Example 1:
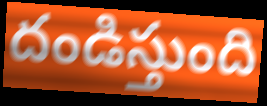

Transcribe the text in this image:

దండిస్తుంది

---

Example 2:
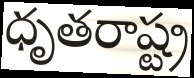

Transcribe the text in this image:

ధృతరాష్ట్ర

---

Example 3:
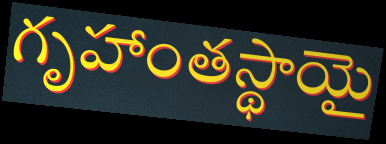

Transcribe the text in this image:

గృహాంతస్థాయై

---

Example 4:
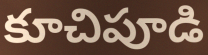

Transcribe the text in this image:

కూచిపూడి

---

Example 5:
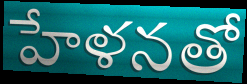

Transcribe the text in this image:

హేళనతో